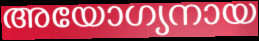
അയോഗ്യനായ